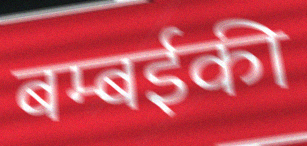
बम्बईकी